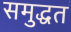
समुद्धत